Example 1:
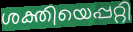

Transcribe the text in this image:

ശക്തിയെപ്പറ്റി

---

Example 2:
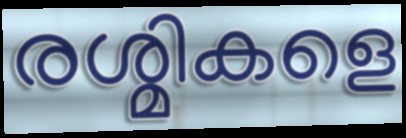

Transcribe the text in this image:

രശ്മികളെ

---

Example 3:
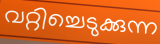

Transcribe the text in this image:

വറ്റിച്ചെടുക്കുന്ന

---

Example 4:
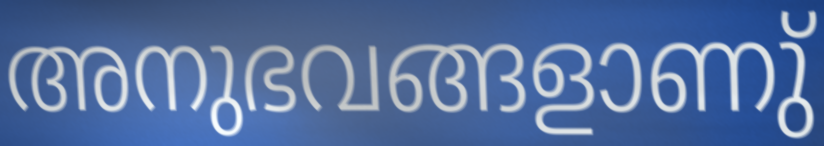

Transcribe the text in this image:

അനുഭവങ്ങളാണു്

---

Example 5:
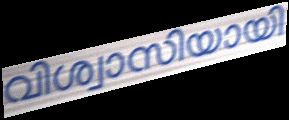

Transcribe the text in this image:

വിശ്വാസിയായി